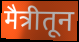
मैत्रीतून